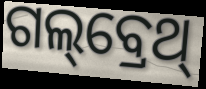
ଗଲ୍‌ବ୍ରେଥ୍